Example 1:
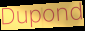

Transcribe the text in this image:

Dupond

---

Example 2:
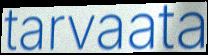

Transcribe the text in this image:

tarvaata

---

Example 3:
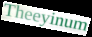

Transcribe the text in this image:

Theeyinum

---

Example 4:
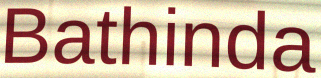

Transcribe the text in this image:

Bathinda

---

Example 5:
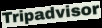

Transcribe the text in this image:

Tripadvisor